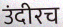
उंदीरच